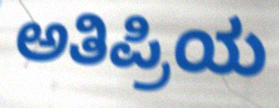
ಅತಿಪ್ರಿಯ